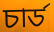
চার্ড